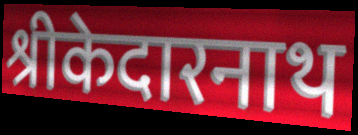
श्रीकेदारनाथ